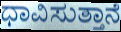
ಧಾವಿಸುತ್ತಾನೆ